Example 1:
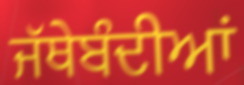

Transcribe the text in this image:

ਜੱਥੇਬੰਦੀਆਂ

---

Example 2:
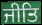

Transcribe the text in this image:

ਜੀਤਿ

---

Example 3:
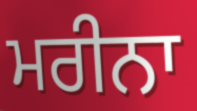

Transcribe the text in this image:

ਮਰੀਨਾ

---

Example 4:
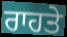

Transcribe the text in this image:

ਰਾਹਤੇ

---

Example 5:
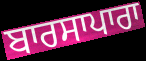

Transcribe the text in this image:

ਬਾਰਸਾਪਾਰਾ